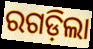
ରଗଡ଼ିଲା